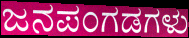
ಜನಪಂಗಡಗಳು